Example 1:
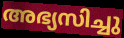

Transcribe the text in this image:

അഭ്യസിച്ചു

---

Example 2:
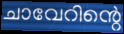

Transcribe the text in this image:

ചാവേറിന്റെ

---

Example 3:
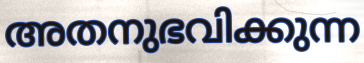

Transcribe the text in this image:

അതനുഭവിക്കുന്ന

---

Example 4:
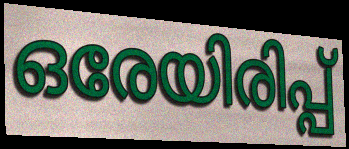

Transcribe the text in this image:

ഒരേയിരിപ്പ്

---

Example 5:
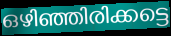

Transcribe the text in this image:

ഒഴിഞ്ഞിരിക്കട്ടെ